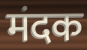
मंदक